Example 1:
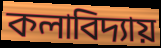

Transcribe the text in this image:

কলাবিদ্যায়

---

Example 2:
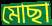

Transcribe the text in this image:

মোছা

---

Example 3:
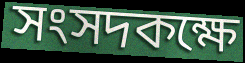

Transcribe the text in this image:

সংসদকক্ষে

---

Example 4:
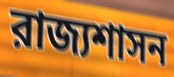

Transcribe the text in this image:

রাজ্যশাসন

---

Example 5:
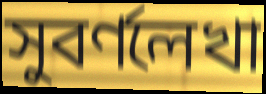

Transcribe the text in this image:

সুবর্ণলেখা